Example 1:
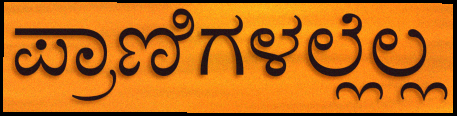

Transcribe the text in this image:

ಪ್ರಾಣಿಗಳಲ್ಲೆಲ್ಲ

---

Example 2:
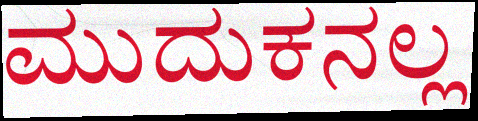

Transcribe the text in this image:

ಮುದುಕನಲ್ಲ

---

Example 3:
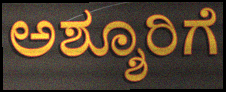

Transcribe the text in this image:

ಅಶ್ಶೂರಿಗೆ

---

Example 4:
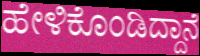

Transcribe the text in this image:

ಹೇಳಿಕೊಂಡಿದ್ದಾನೆ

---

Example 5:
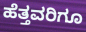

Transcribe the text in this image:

ಹೆತ್ತವರಿಗೂ